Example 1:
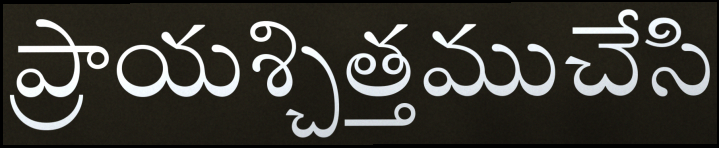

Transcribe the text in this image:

ప్రాయశ్చిత్తముచేసి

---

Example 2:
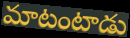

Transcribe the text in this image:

మాటంటాడు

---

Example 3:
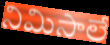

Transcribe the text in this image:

నిమిసాలే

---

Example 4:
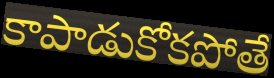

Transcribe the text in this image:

కాపాడుకోకపోతే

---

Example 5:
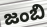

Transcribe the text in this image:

జంబి